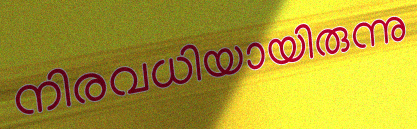
നിരവധിയായിരുന്നു